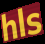
hls